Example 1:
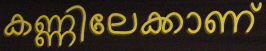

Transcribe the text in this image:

കണ്ണിലേക്കാണ്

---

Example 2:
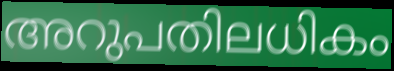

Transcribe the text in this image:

അറുപതിലധികം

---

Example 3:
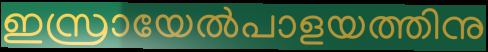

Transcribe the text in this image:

ഇസ്രായേൽപാളയത്തിനു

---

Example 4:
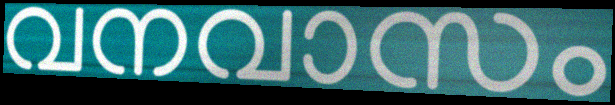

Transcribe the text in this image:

വനവാസം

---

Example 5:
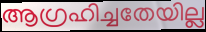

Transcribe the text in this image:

ആഗ്രഹിച്ചതേയില്ല